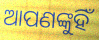
ଆପଣଙ୍କୁହିଁ